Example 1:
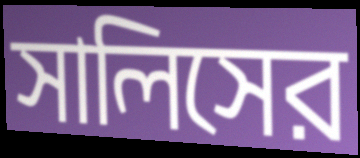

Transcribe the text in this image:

সালিসের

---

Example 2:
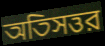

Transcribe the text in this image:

অতিসত্তর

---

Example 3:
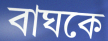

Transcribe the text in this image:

বাঘকে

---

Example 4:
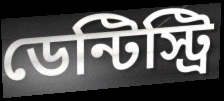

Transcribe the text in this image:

ডেন্টিস্ট্রি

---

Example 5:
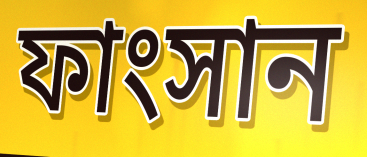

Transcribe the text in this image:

ফাংসান